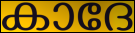
കാദേ